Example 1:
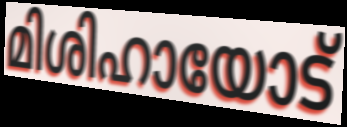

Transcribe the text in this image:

മിശിഹായോട്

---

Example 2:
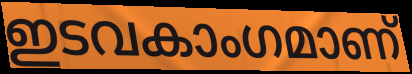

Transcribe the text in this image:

ഇടവകാംഗമാണ്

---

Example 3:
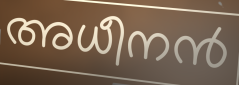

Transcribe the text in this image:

അധീനൻ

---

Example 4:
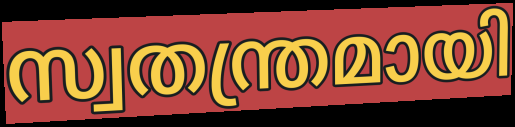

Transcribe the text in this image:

സ്വതന്ത്രമായി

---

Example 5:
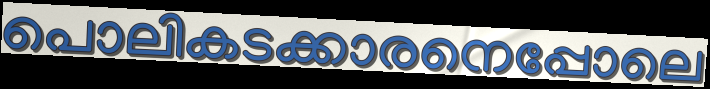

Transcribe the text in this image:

പൊലികടക്കാരനെപ്പോലെ